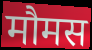
मौमस